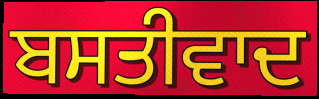
ਬਸਤੀਵਾਦ